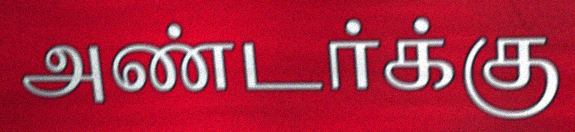
அண்டர்க்கு